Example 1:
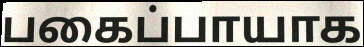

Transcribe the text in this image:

பகைப்பாயாக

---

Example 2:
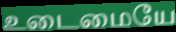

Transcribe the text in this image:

உடைமையே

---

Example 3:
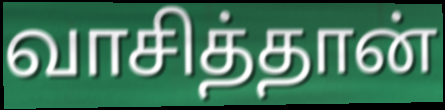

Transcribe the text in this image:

வாசித்தான்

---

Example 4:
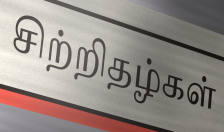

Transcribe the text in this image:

சிற்றிதழ்கள்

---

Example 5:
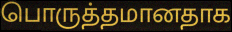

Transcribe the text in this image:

பொருத்தமானதாக